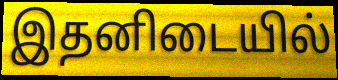
இதனிடையில்